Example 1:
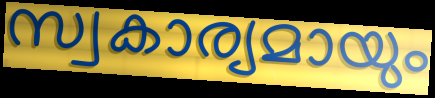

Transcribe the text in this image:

സ്വകാര്യമായും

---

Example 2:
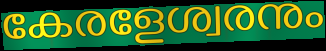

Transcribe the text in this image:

കേരളേശ്വരനും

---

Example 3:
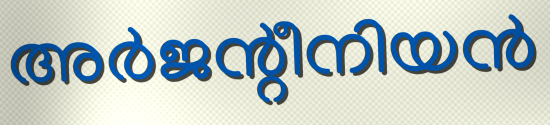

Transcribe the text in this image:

അർജന്റീനിയൻ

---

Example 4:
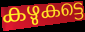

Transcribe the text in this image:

കഴുകട്ടെ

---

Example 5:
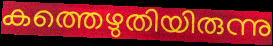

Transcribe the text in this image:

കത്തെഴുതിയിരുന്നു